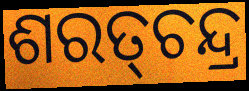
ଶରତ୍‌ଚନ୍ଦ୍ର